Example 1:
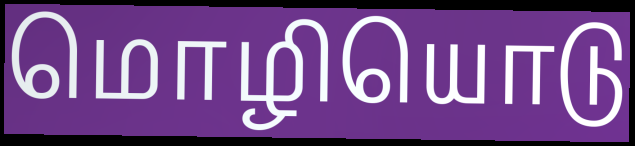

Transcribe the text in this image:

மொழியொடு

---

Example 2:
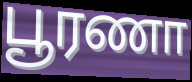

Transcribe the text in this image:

பூரணா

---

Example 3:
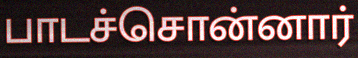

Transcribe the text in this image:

பாடச்சொன்னார்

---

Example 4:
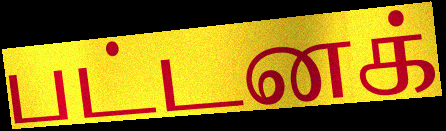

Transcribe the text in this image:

பட்டனக்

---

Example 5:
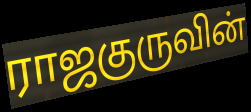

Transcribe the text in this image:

ராஜகுருவின்